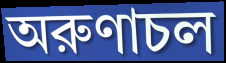
অরুণাচল